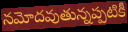
నమోదవుతున్నప్పటికీ